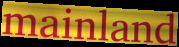
mainland